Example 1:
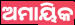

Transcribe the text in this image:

ଅମାୟିକ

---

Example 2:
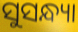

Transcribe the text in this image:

ସୁସନ୍ଧ୍ୟା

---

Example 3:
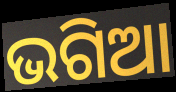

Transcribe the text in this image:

ଭଗିଆ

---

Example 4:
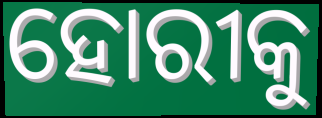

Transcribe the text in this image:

ହୋରୀକୁ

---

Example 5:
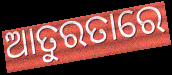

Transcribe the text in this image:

ଆତୁରତାରେ